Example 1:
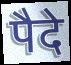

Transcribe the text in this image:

पैदे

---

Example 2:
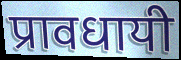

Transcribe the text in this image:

प्रावधायी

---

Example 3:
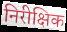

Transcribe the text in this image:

निरीक्षिक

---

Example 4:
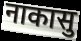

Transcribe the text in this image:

नाकासु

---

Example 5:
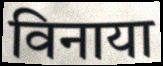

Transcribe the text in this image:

विनाया